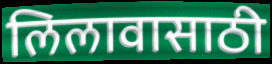
लिलावासाठी